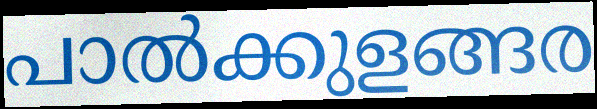
പാൽക്കുളങ്ങര